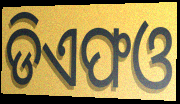
ଡିଏଫଓ